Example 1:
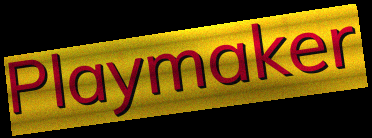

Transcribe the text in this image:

Playmaker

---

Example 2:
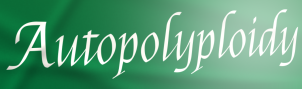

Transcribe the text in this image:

Autopolyploidy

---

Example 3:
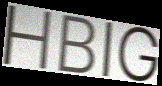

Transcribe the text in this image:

HBIG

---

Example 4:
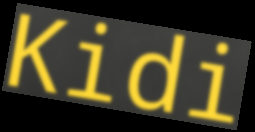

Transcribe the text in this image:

Kidi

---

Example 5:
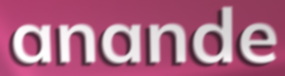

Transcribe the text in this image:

anande